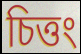
চিত্তং